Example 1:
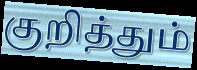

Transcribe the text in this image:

குறித்தும்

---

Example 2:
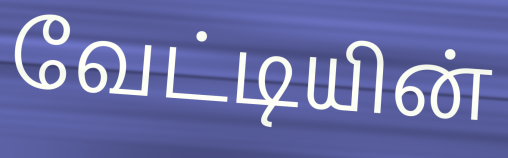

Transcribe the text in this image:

வேட்டியின்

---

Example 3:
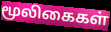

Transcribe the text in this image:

மூலிகைகள்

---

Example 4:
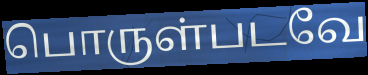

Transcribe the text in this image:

பொருள்படவே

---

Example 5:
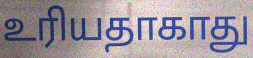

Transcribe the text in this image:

உரியதாகாது